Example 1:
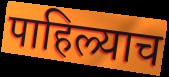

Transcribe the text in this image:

पाहिल्याच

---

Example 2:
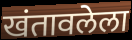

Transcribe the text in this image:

खंतावलेला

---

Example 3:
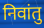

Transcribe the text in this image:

निवांतु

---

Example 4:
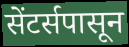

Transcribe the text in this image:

सेंटर्सपासून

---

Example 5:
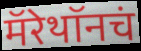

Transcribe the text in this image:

मॅरेथॉनचं